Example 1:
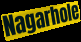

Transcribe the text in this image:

Nagarhole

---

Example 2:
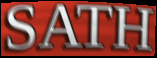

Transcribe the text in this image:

SATH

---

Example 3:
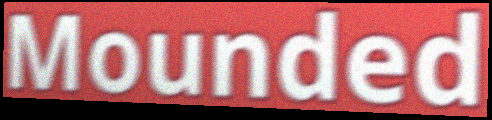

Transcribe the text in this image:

Mounded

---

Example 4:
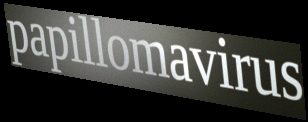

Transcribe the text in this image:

papillomavirus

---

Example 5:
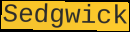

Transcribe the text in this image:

Sedgwick